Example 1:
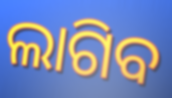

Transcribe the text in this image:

ଲାଗିବ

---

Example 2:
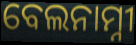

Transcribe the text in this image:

ବେଲନାମ୍ନୀ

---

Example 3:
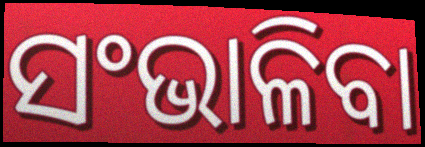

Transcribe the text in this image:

ସଂଭାଳିବା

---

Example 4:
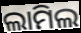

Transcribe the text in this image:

ଲାମିଲ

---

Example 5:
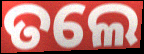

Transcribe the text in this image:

ତଲେ